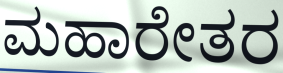
ಮಹಾರೇತರ